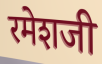
रमेशजी